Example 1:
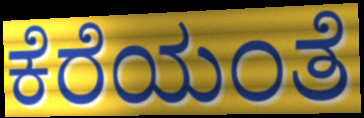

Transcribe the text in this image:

ಕೆರೆಯಂತೆ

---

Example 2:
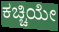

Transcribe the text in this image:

ಕಚ್ಚಿಯೇ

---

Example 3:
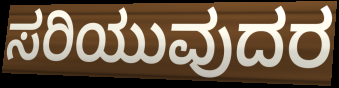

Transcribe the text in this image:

ಸರಿಯುವುದರ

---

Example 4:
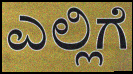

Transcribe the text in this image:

ಎಲ್ಲಿಗೆ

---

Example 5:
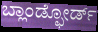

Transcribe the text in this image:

ಬ್ಲಾಂಡ್ಫೋರ್ಡ್